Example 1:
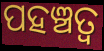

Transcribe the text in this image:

ପହଞ୍ଚତ୍ବ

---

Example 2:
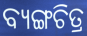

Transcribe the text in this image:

ବ୍ୟଙ୍ଗଚିତ୍ର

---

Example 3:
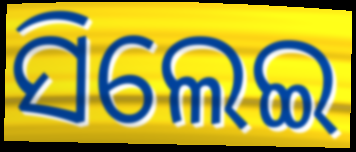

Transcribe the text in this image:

ସିଲେଇ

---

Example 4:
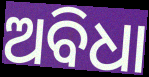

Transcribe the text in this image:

ଅବିଧା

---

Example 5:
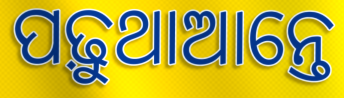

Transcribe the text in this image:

ପଢ଼ୁଥାଆନ୍ତେ